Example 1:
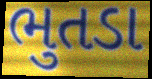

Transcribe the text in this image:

ભુતડા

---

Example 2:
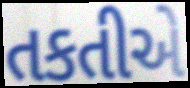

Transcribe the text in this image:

તકતીએ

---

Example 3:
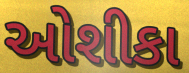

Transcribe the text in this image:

ઓશીકા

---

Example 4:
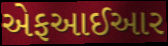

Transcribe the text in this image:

એફઆઈઆર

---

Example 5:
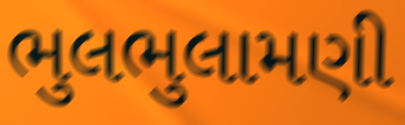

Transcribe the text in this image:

ભુલભુલામણી